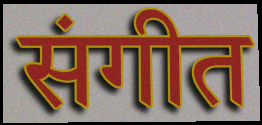
संगीत